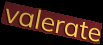
valerate